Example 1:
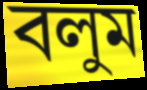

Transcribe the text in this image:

বলুম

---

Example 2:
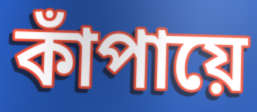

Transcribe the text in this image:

কাঁপায়ে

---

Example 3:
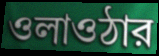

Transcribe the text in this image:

ওলাওঠার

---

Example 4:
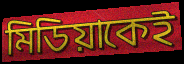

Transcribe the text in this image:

মিডিয়াকেই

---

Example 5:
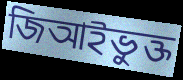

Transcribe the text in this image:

জিআইভুক্ত